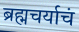
ब्रह्मचर्याचं